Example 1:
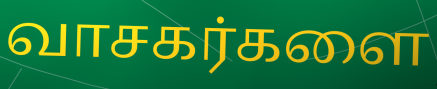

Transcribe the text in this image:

வாசகர்களை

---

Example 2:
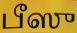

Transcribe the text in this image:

பீஸு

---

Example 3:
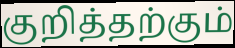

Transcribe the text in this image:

குறித்தற்கும்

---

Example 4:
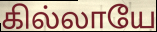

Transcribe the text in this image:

கில்லாயே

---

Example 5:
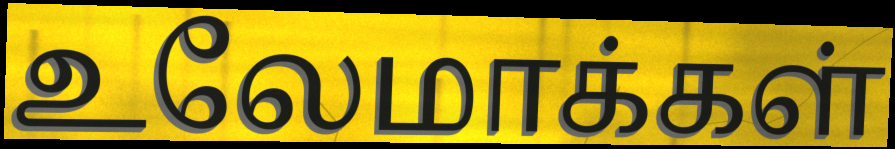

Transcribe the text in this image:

உலேமாக்கள்